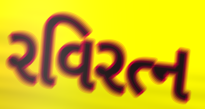
રવિરત્ન